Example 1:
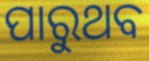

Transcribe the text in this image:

ପାରୁଥବ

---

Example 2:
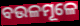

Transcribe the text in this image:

ବଉଳମୂଳେ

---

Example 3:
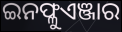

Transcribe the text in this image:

ଇନଫ୍ଳୁଏଞ୍ଜାର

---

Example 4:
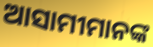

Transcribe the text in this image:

ଆସାମୀମାନଙ୍କ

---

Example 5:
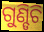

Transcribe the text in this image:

ଗୁଣ୍ଡିଚି